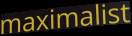
maximalist